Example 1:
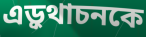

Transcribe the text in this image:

এড়ুথাচনকে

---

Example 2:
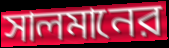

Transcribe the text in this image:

সালমানের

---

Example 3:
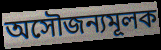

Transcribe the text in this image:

অসৌজন্যমূলক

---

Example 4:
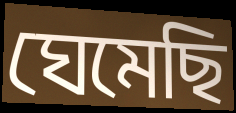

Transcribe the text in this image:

ঘেমেছি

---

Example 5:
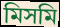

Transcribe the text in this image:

মিসমি